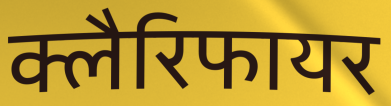
क्लैरिफायर